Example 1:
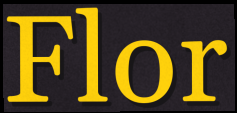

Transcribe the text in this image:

Flor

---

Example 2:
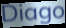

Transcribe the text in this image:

Diago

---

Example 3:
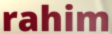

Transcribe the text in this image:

rahim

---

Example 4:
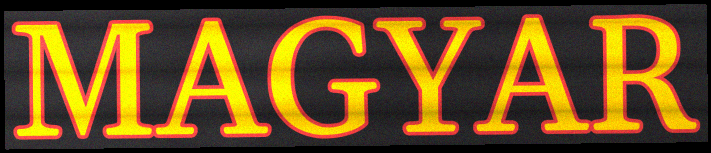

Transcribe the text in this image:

MAGYAR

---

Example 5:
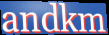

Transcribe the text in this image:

andkm